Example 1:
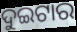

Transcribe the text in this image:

ଦୁଇଟାର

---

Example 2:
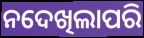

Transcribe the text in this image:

ନଦେଖିଲାପରି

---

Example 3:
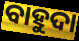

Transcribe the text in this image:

ବାହୁଦା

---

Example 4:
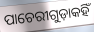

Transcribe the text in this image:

ପାଚେରୀଗୁଡ଼ାକହିଁ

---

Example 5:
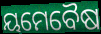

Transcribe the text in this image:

ୟମେବୈଷ